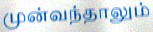
முன்வந்தாலும்